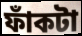
ফাঁকটা